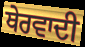
ਥੇਰਵਾਦੀ